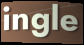
ingle